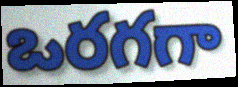
ఒరగగా